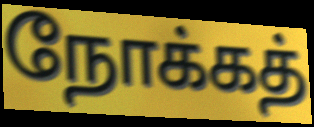
நோக்கத்